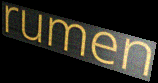
rumen